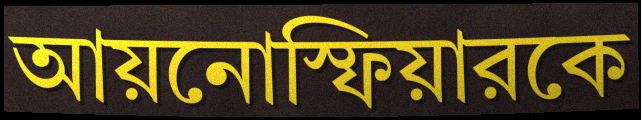
আয়নোস্ফিয়ারকে